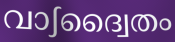
വാഽദ്വൈതം